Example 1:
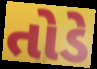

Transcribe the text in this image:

તોડે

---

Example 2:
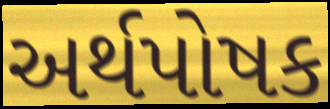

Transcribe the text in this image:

અર્થપોષક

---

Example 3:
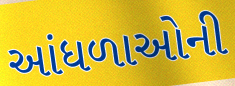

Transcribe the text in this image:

આંધળાઓની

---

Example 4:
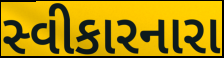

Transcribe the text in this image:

સ્વીકારનારા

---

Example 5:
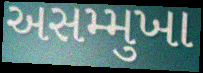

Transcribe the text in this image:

અસમ્મુખા